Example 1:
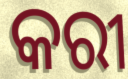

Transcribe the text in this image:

କରୀ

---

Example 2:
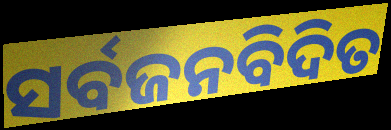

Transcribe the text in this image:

ସର୍ବଜନବିଦିତ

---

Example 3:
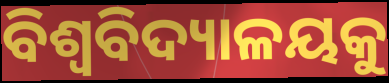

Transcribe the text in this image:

ବିଶ୍ବବିଦ୍ୟାଳୟକୁ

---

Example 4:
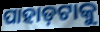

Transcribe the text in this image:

ପାହାଡ଼ଟାକୁ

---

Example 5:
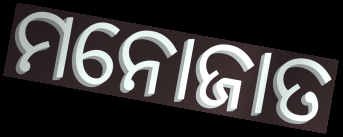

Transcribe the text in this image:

ମନୋଜାତ